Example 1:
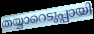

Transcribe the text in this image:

തയ്യാറെടുപ്പായി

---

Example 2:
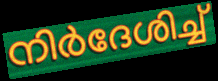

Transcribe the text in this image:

നിർദേശിച്ച്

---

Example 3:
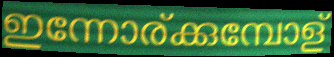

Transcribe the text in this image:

ഇന്നോര്ക്കുമ്പോള്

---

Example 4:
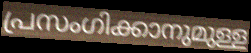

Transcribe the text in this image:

പ്രസംഗിക്കാനുമുള്ള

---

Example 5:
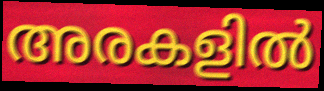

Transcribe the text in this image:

അരകളിൽ